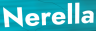
Nerella